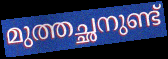
മുത്തച്ഛനുണ്ട്